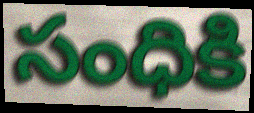
సంధికి